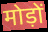
मोड़ों